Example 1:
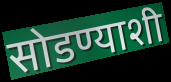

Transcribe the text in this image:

सोडण्याशी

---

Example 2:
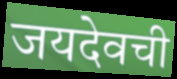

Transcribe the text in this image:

जयदेवची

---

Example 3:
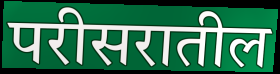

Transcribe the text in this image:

परीसरातील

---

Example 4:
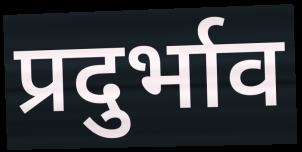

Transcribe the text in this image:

प्रदुर्भाव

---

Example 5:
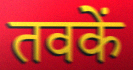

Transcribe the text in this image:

तवकें